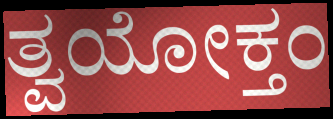
ತ್ವಯೋಕ್ತಂ